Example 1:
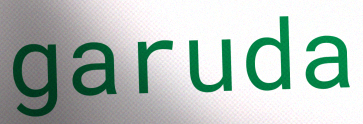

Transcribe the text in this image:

garuda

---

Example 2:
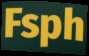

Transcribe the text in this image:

Fsph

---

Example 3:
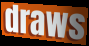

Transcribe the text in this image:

draws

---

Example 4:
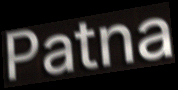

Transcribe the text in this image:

Patna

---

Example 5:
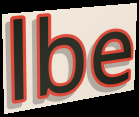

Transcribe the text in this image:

lbe